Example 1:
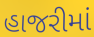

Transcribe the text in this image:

હાજરીમાં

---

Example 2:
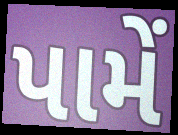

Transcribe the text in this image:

પામેં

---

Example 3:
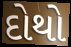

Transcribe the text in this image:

દોથો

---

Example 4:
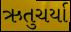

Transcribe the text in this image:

ઋતુચર્યા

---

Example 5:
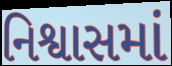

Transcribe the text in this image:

નિશ્વાસમાં